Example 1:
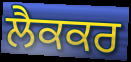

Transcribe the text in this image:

ਲੈਕਕਰ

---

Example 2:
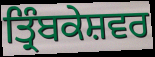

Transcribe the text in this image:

ਤ੍ਰਿੰਬਕੇਸ਼ਵਰ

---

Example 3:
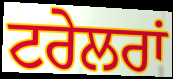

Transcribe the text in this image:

ਟਰੇਲਰਾਂ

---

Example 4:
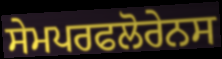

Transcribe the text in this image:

ਸੇਮਪਰਫਲੋਰੇਨਸ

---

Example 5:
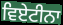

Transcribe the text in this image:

ਵਿਏਟੀਨਾ